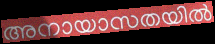
അനായാസതയിൽ